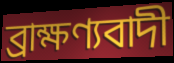
ব্রাক্ষণ্যবাদী